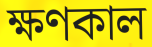
ক্ষণকাল